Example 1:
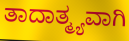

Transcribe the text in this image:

ತಾದಾತ್ಮ್ಯವಾಗಿ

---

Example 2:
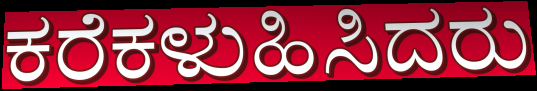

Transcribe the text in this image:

ಕರೆಕಳುಹಿಸಿದರು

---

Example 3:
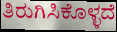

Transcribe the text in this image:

ತಿರುಗಿಸಿಕೊಳ್ಳದೆ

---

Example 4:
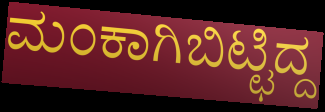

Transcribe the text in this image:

ಮಂಕಾಗಿಬಿಟ್ಟಿದ್ದ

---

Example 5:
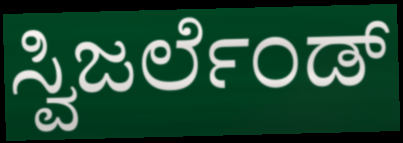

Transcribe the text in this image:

ಸ್ವಿಜರ್ಲೆಂಡ್